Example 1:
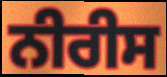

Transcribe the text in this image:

ਨੀਰੀਸ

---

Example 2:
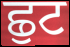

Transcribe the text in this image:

ਛੁਟ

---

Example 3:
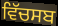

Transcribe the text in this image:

ਵਿੱਚਸਬ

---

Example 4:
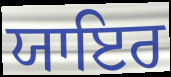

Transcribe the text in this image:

ਯਾਇਰ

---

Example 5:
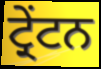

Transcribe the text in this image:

ਟ੍ਰੇਂਟਨ